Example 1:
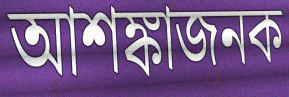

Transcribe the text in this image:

আশঙ্কাজনক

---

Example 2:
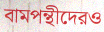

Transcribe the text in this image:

বামপন্থীদেরও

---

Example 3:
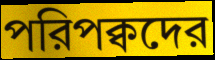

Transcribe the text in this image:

পরিপক্বদের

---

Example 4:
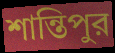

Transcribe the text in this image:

শান্তিপুর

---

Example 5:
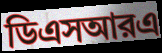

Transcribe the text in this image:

ডিএসআরএ